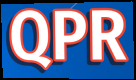
QPR